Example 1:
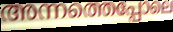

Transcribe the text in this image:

അന്നത്തെപ്പോലെ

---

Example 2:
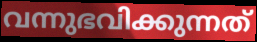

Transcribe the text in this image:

വന്നുഭവിക്കുന്നത്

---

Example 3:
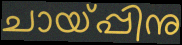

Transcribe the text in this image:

ചായ്പ്പിനു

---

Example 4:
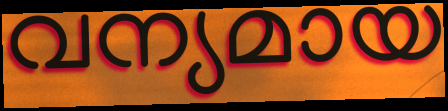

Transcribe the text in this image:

വന്യമായ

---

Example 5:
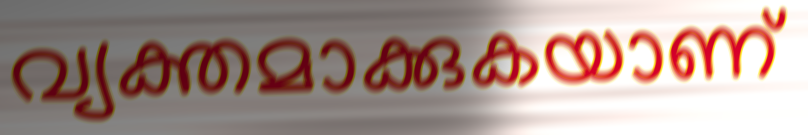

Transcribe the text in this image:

വ്യക്തമാക്കുകയാണ്